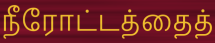
நீரோட்டத்தைத்